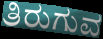
ತಿರುಗುವ